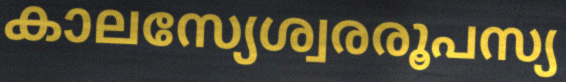
കാലസ്യേശ്വരരൂപസ്യ